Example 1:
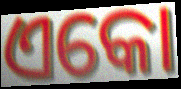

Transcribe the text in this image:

ଏକୋ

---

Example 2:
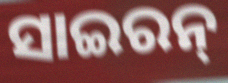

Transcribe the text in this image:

ସାଇରନ୍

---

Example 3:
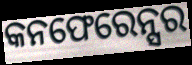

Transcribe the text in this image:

କନଫେରେନ୍ସର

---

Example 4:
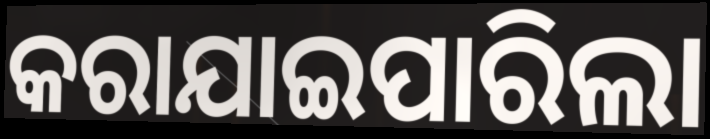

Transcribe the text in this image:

କରାଯାଇପାରିଲା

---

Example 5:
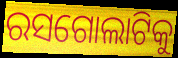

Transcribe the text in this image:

ରସଗୋଲାଟିକୁ